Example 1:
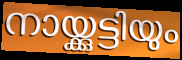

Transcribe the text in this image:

നായ്ക്കുട്ടിയും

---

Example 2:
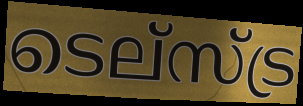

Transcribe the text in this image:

ടെല്സ്ട്ര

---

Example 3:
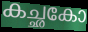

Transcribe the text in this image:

കച്ഛകോ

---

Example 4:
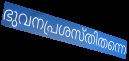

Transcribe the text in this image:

ഭുവനപ്രശസ്തിതന്നെ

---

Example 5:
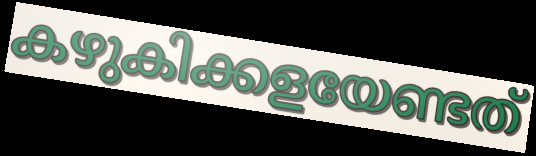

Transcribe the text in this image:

കഴുകിക്കളയേണ്ടത്